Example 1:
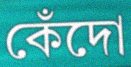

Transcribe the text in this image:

কেঁদো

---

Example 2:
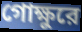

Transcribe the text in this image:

গোক্ষুরে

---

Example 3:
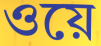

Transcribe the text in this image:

ওয়ে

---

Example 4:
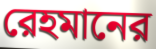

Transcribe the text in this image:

রেহমানের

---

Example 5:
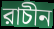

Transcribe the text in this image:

রাচীন